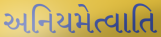
અનિયમેત્વાતિ